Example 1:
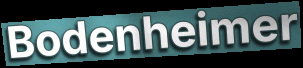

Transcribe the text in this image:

Bodenheimer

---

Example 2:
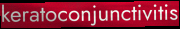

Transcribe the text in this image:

keratoconjunctivitis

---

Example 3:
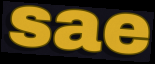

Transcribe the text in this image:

sae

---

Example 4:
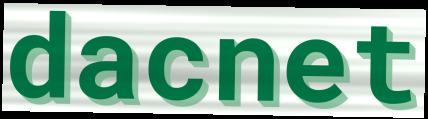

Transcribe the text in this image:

dacnet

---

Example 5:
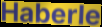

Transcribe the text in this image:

Haberle